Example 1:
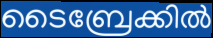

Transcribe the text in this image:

ടൈബ്രേക്കിൽ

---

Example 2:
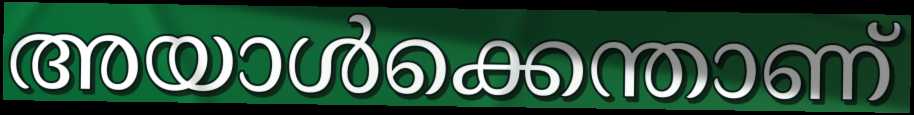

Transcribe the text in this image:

അയാൾക്കെന്താണ്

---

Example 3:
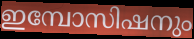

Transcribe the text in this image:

ഇമ്പോസിഷനും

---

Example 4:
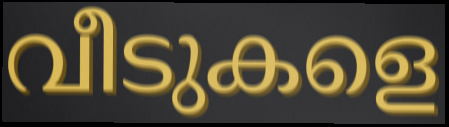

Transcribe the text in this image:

വീടുകളെ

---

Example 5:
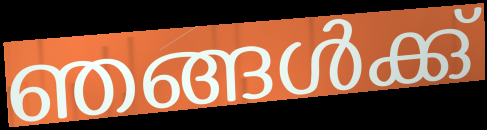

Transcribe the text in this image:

ഞങ്ങൾക്കു്